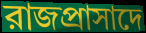
রাজপ্রাসাদে